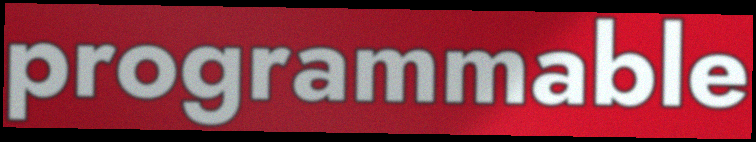
programmable